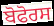
ਬੋਫੋਰਸ